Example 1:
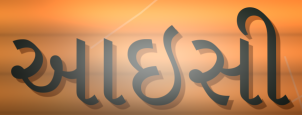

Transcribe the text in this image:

આઇસી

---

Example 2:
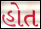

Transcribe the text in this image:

હોત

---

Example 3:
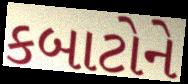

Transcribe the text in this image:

કબાટોને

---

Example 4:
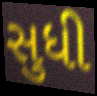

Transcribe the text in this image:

સુધી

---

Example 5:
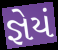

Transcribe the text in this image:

જ્ઞેયં